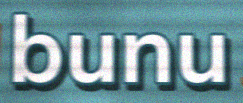
bunu